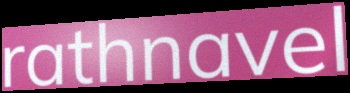
rathnavel